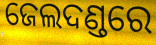
ଜେଲଦଣ୍ଡରେ